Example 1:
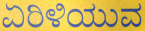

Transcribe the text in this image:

ಏರಿಳಿಯುವ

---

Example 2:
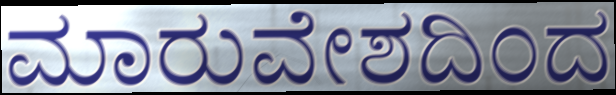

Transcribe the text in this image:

ಮಾರುವೇಶದಿಂದ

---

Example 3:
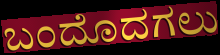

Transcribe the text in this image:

ಬಂದೊದಗಲು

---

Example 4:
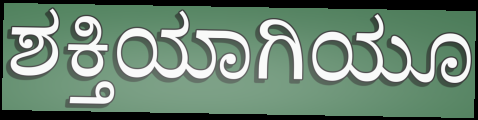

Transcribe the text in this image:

ಶಕ್ತಿಯಾಗಿಯೂ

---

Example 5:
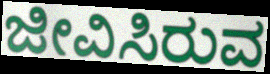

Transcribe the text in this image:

ಜೀವಿಸಿರುವ